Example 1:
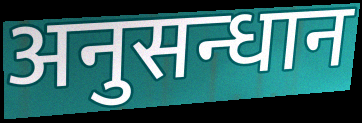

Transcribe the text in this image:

अनुसन्धान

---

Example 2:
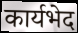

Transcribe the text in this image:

कार्यभेद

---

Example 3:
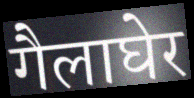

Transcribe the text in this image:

गैलाघेर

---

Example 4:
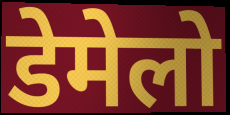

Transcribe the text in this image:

डेमेलो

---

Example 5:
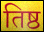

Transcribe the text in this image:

तिष्ठ